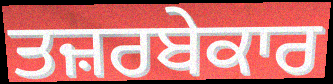
ਤਜ਼ਰਬੇਕਾਰ